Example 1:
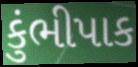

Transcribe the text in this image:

કુંભીપાક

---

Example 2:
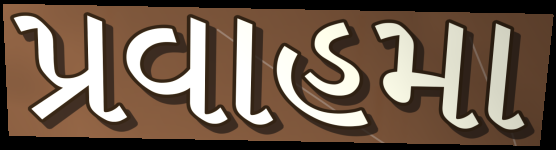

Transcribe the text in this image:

પ્રવાહમા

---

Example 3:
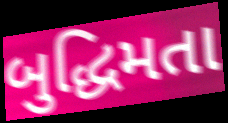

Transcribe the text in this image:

બુદ્ધિમતા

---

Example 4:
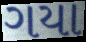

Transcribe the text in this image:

ગયા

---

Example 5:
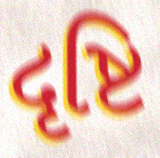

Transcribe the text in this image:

દૃષ્ટિ